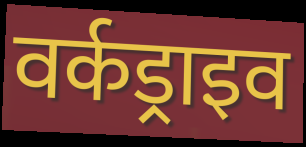
वर्कड्राइव